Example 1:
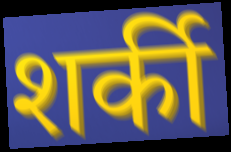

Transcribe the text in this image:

शर्की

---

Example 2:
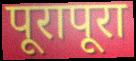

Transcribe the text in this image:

पूरापूरा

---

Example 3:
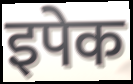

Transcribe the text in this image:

इपेक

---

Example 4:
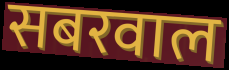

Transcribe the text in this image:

सबरवाल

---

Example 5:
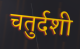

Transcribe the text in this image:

चतुर्दशी